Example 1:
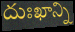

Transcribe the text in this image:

దుఃఖాన్ని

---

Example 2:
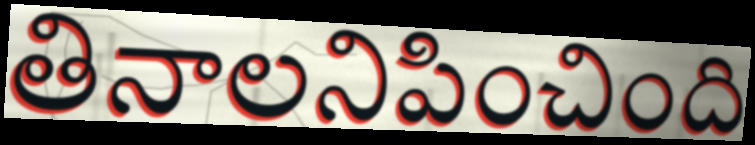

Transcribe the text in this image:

తినాలనిపించింది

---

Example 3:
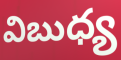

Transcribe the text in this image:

విబుధ్య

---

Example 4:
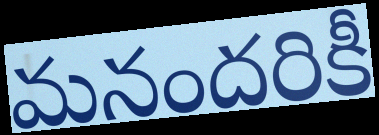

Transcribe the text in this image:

మనందరికీ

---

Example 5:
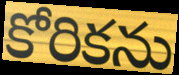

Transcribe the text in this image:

కోరికను